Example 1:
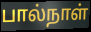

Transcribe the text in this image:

பால்நாள்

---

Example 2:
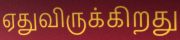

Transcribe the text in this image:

ஏதுவிருக்கிறது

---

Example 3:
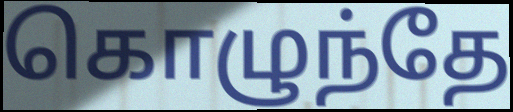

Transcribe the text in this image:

கொழுந்தே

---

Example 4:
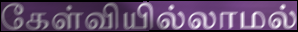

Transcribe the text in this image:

கேள்வியில்லாமல்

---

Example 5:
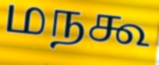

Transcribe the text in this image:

மநகூ